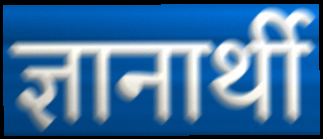
ज्ञानार्थी